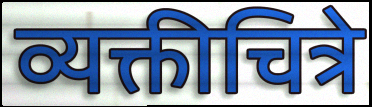
व्यक्तीचित्रे